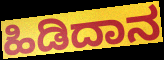
ಹಿಡಿದಾನ